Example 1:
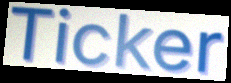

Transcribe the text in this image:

Ticker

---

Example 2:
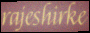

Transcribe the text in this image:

rajeshirke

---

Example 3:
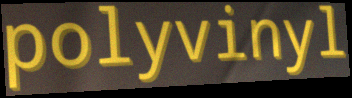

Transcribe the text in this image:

polyvinyl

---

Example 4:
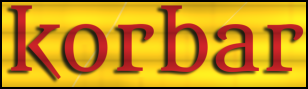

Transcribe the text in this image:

korbar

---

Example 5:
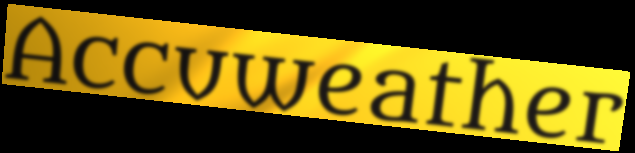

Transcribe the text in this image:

Accuweather